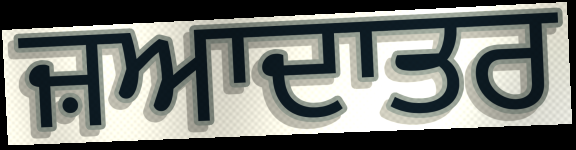
ਜ਼ਆਦਾਤਰ